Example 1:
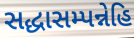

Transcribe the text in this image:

સદ્ધાસમ્પન્નેહિ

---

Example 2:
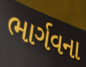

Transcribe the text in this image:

ભાર્ગવના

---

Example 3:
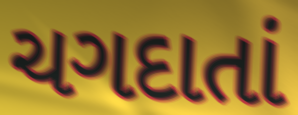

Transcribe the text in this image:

ચગદાતાં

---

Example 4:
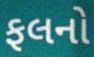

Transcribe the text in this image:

ફલનો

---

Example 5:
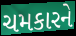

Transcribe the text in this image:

ચમકારને